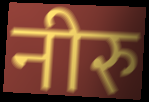
नीरु